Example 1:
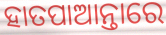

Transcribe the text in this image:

ହାତପାଆନ୍ତାରେ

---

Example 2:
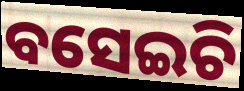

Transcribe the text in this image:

ବସେଇଚି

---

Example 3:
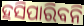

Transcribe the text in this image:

ହସିପାରିବନି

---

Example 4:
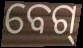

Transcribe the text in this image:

ବେଗ୍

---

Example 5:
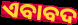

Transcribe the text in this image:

ଏବାବଦ